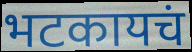
भटकायचं